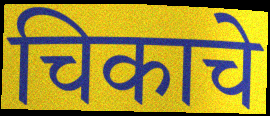
चिकाचे